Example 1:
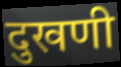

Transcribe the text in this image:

दुखणी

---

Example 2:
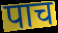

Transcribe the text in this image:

पाच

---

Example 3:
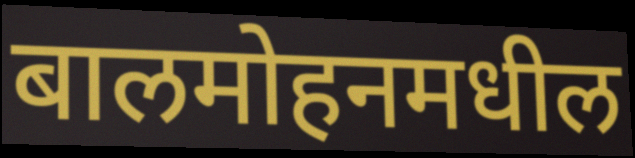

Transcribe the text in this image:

बालमोहनमधील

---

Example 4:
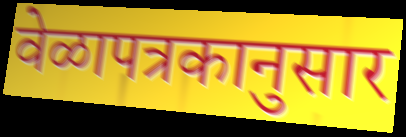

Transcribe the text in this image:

वेळापत्रकानुसार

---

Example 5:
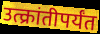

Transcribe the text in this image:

उत्क्रांतीपर्यंत